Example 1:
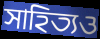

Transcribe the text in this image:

সাহিত্যও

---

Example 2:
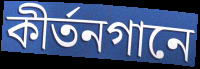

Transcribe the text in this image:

কীর্তনগানে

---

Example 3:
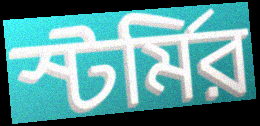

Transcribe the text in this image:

স্টর্মির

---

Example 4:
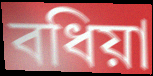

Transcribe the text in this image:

বধিয়া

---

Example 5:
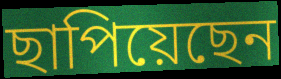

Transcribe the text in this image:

ছাপিয়েছেন